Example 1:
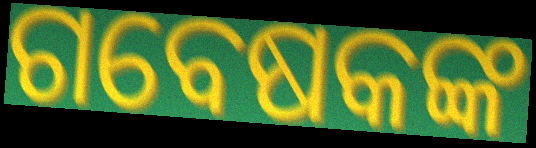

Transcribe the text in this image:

ଗବେଷକଙ୍କ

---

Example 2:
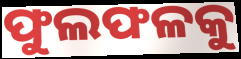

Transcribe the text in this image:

ଫୁଲଫଳକୁ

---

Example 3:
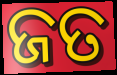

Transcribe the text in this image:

ଜତ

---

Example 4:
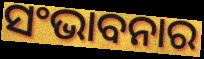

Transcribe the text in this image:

ସଂଭାବନାର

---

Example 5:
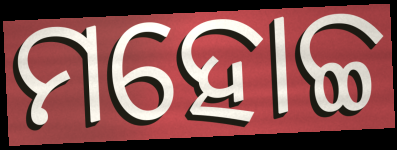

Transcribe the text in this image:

ମହୋଚ୍ଚ